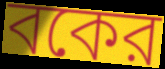
বকের